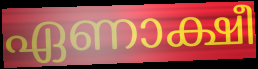
ഏണാക്ഷീ